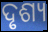
ଦୃଶ୍ଯ